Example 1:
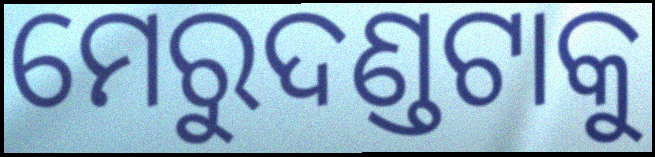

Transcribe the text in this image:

ମେରୁଦଣ୍ଡଟାକୁ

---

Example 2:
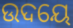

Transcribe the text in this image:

ଉଦୟେ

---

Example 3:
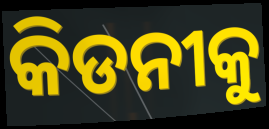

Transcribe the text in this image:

କିଡନୀକୁ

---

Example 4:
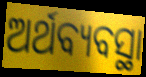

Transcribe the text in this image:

ଅର୍ଥବ୍ୟବସ୍ଥା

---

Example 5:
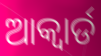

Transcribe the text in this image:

ଆକ୍ୱାର୍ଡ